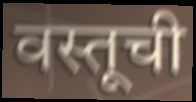
वस्तूची